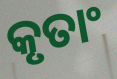
କୃତାଂ